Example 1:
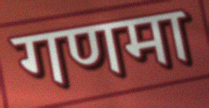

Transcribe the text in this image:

गणमा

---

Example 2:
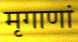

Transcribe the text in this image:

मृगाणां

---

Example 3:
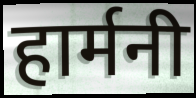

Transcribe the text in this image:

हार्मनी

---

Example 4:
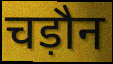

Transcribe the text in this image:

चड़ौन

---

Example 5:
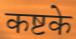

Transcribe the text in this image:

कष्टके